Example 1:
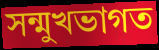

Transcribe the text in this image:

সন্মুখভাগত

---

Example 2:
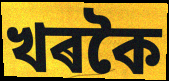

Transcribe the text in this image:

খৰকৈ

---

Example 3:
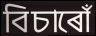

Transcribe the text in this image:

বিচাৰোঁ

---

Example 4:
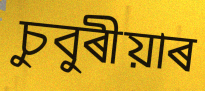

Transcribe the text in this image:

চুবুৰীয়াৰ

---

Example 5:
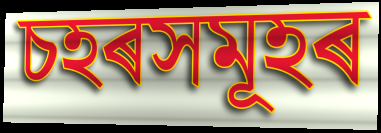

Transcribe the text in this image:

চহৰসমূহৰ